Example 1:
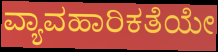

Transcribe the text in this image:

ವ್ಯಾವಹಾರಿಕತೆಯೇ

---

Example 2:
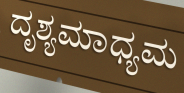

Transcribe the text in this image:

ದೃಶ್ಯಮಾಧ್ಯಮ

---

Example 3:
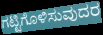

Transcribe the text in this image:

ಗಟ್ಟಿಗೊಳಿಸುವುದರ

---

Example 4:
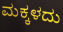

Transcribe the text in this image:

ಮಕ್ಕಳದು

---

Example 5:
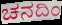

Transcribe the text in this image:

ಚನದಿಂ